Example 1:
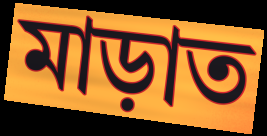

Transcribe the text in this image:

মাড়াত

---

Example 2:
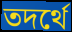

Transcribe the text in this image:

তদর্থে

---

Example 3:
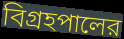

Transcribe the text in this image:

বিগ্রহপালের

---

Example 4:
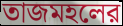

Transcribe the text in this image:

তাজমহলের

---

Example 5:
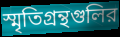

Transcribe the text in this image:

স্মৃতিগ্রন্থগুলির